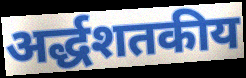
अर्द्धशतकीय